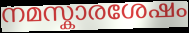
നമസ്കാരശേഷം